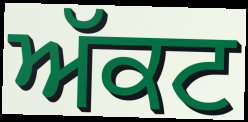
ਅੱਕਟ